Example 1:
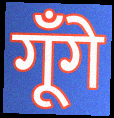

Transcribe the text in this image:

गूँगे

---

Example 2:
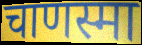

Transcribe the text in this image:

चाणस्मा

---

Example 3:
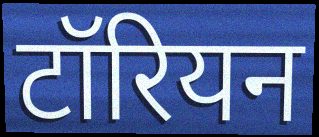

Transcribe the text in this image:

टॉरियन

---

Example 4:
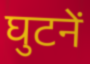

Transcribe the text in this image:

घुटनें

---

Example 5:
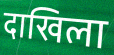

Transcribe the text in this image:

दाखिला